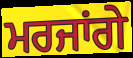
ਮਰਜਾਂਗੇ